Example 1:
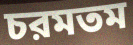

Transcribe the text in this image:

চরমতম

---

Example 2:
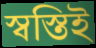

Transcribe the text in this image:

স্বস্তিই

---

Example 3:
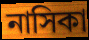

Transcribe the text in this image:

নাসিকা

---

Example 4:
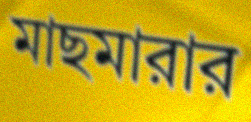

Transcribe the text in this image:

মাছমারার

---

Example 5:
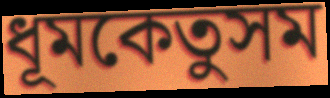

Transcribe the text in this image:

ধূমকেতুসম